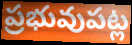
ప్రభువుపట్ల